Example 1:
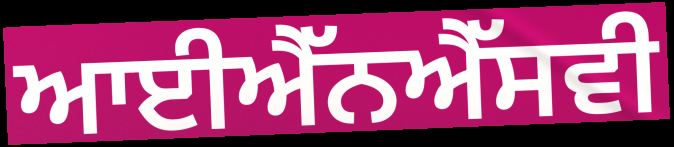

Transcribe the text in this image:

ਆਈਐੱਨਐੱਸਵੀ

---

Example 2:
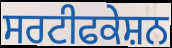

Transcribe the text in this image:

ਸਰਟੀਫਕੇਸ਼ਨ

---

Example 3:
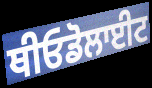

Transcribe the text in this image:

ਥੀਓਡੋਲਾਈਟ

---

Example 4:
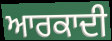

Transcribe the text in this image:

ਆਰਕਾਦੀ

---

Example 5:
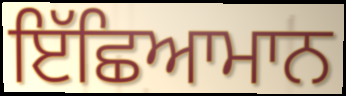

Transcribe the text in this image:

ਇੱਛਿਆਮਾਨ